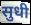
सुधी